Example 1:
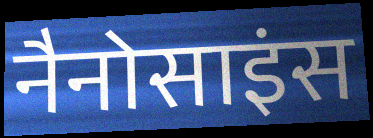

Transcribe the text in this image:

नैनोसाइंस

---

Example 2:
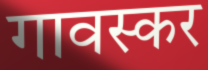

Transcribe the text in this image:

गावस्‍कर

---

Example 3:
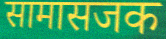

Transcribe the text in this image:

सामासजक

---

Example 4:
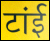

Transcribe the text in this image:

टांई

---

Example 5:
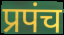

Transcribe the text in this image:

प्रपंच